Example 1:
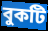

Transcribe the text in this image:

বুকটি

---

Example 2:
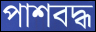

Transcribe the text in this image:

পাশবদ্ধ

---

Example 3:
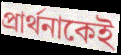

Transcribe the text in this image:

প্রার্থনাকেই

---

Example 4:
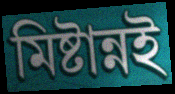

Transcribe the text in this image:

মিষ্টান্নই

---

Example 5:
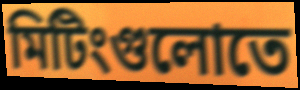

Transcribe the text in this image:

মিটিংগুলোতে